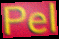
Pel